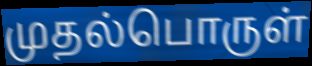
முதல்பொருள்